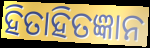
ହିତାହିତଜ୍ଞାନ